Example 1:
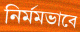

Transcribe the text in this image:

নির্মমভাবে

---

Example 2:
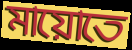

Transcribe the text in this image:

মায়োতে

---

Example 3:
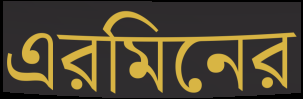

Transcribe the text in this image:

এরমিনের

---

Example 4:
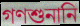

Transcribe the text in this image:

গণশুনানি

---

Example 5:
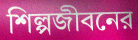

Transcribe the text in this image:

শিল্পজীবনের